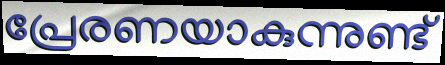
പ്രേരണയാകുന്നുണ്ട്